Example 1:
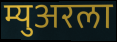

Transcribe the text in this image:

म्युअरला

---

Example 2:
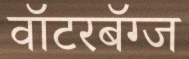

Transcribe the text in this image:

वॉटरबॅग्ज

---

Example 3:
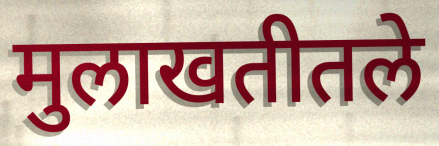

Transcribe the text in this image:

मुलाखतीतले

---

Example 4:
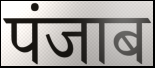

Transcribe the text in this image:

पंजाब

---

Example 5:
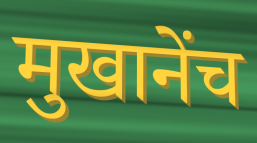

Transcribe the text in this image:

मुखानेंच